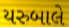
યરુબાલે